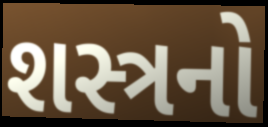
શસ્ત્રનો